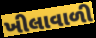
ખીલાવાળી